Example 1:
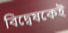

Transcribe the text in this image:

বিদ্বেষকেই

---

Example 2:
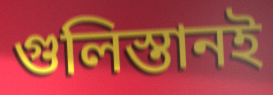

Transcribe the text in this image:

গুলিস্তানই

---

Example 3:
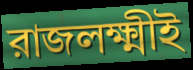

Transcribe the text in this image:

রাজলক্ষ্মীই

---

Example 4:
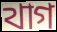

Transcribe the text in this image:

থাগ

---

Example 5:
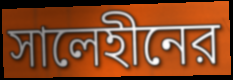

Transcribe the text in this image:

সালেহীনের